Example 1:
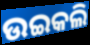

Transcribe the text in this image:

ଉଇକଲି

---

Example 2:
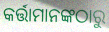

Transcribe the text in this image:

କର୍ତ୍ତାମାନଙ୍କଠାରୁ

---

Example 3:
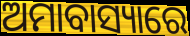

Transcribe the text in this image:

ଅମାବାସ୍ୟାରେ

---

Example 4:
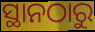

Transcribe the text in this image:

ସ୍ଥାନଠାରୁ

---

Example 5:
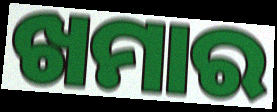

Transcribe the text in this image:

ଖମାର